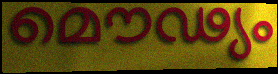
മൌഢ്യം